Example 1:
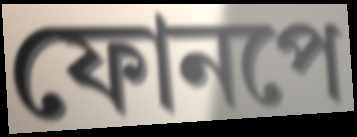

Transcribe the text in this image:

ফোনপে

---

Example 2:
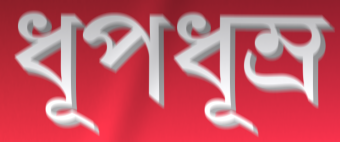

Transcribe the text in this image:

ধূপধূম্র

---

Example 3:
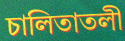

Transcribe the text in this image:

চালিতাতলী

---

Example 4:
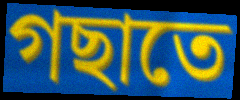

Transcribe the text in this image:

গছাতে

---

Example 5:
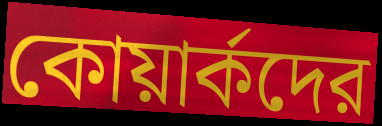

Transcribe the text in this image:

কোয়ার্কদের